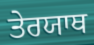
ਤੇਰਯਾਥ